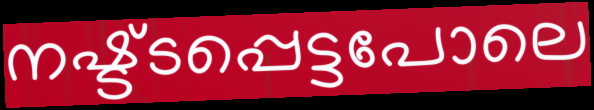
നഷ്ട്ടപ്പെട്ടപോലെ